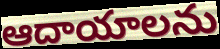
ఆదాయాలను